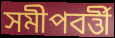
সমীপবর্ত্তী